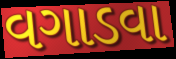
વગાડવા